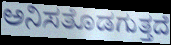
ಅನಿಸತೊಡಗುತ್ತದೆ